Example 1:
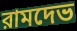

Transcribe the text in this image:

রামদেভ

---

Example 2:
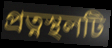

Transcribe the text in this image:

প্রত্নস্থলটি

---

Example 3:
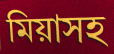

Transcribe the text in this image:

মিয়াসহ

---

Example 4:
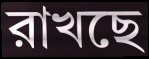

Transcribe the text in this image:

রাখছে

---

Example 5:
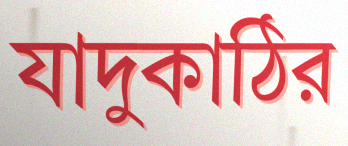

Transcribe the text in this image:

যাদুকাঠির